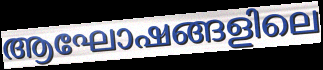
ആഘോഷങ്ങളിലെ